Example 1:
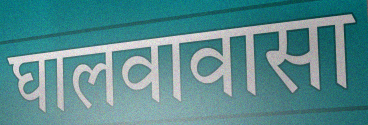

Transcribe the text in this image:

घालवावासा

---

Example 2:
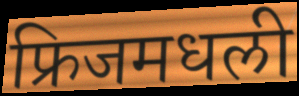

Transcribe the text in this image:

फ्रिजमधली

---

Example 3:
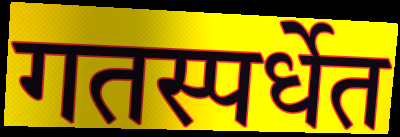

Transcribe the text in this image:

गतस्पर्धेत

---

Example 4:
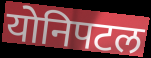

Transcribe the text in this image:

योनिपटल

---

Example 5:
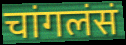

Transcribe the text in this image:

चांगलंसं